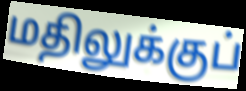
மதிலுக்குப்